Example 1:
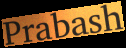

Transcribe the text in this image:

Prabash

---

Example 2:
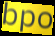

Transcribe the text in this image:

bpo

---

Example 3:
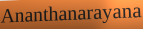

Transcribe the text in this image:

Ananthanarayana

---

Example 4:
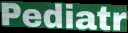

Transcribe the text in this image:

Pediatr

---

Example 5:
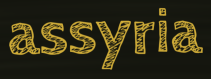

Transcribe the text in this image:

assyria